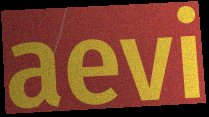
aevi